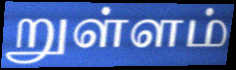
றுள்ளம்